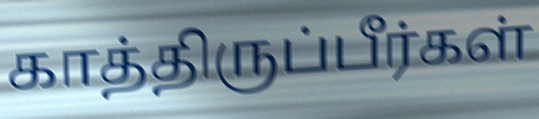
காத்திருப்பீர்கள்